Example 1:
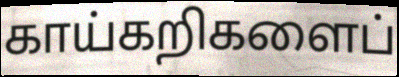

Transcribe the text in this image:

காய்கறிகளைப்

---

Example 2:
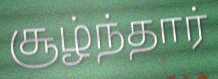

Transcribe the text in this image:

சூழ்ந்தார்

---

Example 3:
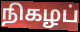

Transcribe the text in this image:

நிகழப்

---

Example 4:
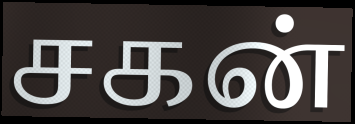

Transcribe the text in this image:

சகன்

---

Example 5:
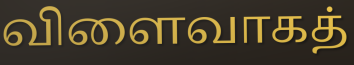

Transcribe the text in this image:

விளைவாகத்